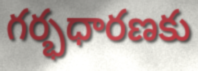
గర్భధారణకు